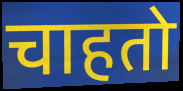
चाहतो